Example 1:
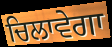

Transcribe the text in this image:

ਚਿਲਾਵੇਗਾ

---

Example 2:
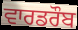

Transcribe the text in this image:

ਵਾਰਡਰੌਬ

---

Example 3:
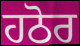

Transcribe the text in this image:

ਹਠੋਰ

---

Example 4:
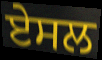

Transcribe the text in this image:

ਏਸਲ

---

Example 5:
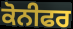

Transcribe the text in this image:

ਕੋਨੀਫਰ